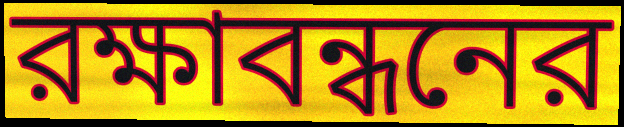
রক্ষাবন্ধনের